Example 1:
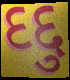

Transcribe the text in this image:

દદ્દુ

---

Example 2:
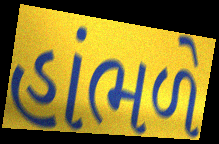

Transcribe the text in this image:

હાંભળે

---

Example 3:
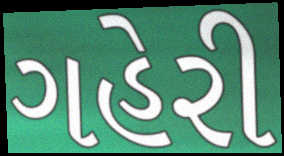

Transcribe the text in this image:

ગહેરી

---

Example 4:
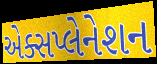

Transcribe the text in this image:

એક્સપ્લેનેશન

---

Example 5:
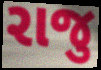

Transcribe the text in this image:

રાજુ